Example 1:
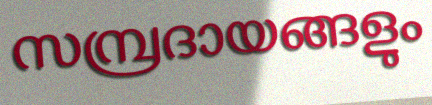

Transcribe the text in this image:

സമ്പ്രദായങ്ങളും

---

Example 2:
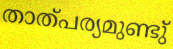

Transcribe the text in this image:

താത്പര്യമുണ്ടു്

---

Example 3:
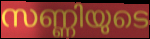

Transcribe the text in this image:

സണ്ണിയുടെ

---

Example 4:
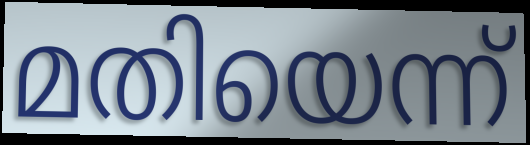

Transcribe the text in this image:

മതിയെന്ന്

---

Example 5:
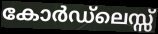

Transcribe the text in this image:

കോർഡ്ലെസ്സ്